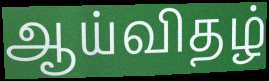
ஆய்விதழ்